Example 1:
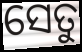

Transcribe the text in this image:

ସେତୁ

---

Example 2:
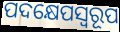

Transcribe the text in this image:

ପଦକ୍ଷେପସ୍ୱରୂପ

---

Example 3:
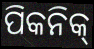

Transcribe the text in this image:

ପିକନିକ୍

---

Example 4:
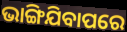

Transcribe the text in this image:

ଭାଙ୍ଗିଯିବାପରେ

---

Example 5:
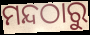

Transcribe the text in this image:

ମନ୍ଦଠାରୁ